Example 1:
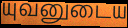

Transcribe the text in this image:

யுவனுடைய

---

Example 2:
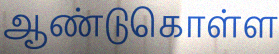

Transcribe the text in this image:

ஆண்டுகொள்ள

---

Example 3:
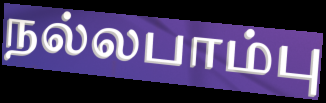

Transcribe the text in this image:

நல்லபாம்பு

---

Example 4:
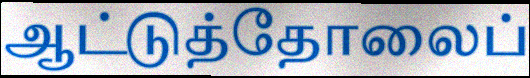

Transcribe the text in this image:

ஆட்டுத்தோலைப்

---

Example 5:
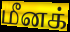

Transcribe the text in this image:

மீனக்